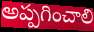
అప్పగించాలి